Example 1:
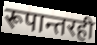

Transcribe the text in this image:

रूपान्तरही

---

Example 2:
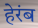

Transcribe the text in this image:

हेरंब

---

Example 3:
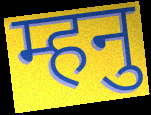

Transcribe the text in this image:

म्हनु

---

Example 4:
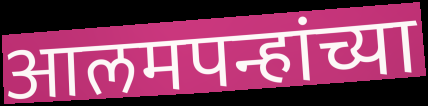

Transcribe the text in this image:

आलमपन्हांच्या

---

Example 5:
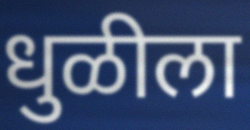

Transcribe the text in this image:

धुळीला